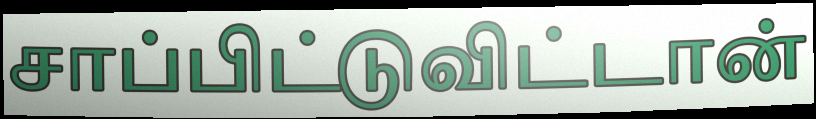
சாப்பிட்டுவிட்டான்